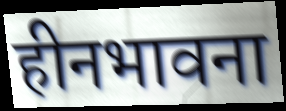
हीनभावना